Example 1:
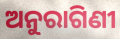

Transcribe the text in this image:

ଅନୁରାଗିଣୀ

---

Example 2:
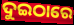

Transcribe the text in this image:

ଦୁଇଠାରେ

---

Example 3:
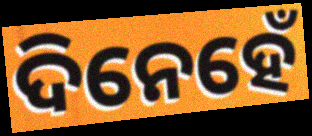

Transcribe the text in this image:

ଦିନେହେଁ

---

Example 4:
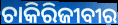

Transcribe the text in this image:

ଚାକିରିଜୀବୀର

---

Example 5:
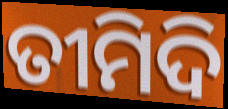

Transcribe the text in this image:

ତୀମିଦି